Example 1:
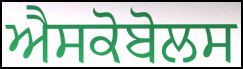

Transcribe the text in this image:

ਐਸਕੋਬੋਲਸ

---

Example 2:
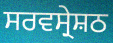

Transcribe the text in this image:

ਸਰਵਸ੍ਰੇਸ਼ਠ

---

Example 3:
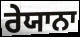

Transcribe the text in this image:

ਰੇਯਾਨਾ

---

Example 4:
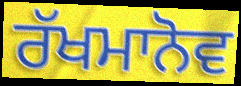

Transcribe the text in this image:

ਰੱਖਮਾਨੋਵ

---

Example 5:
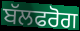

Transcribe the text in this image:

ਬੱਲਫਰੋਗ